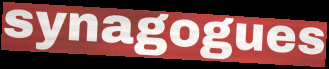
synagogues